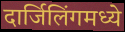
दार्जिलिंगमध्ये